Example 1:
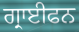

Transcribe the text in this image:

ਗ੍ਰਾਈਫਨ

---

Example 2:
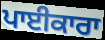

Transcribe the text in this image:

ਪਾਈਕਾਰਾ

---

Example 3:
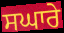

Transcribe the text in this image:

ਸਘਾਰੇ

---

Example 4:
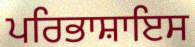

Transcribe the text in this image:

ਪਰਿਭਾਸ਼ਾਇਸ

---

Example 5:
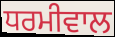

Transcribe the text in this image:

ਧਰਮੀਵਾਲ